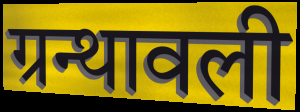
ग्रन्थावली